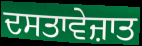
ਦਸਤਾਵੇਜ਼ਾਤ